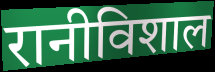
रानीविशाल